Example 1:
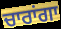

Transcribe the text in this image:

ਚਾਰਾਂਗਾ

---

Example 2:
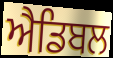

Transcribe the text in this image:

ਐਡਿਬਲ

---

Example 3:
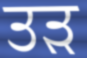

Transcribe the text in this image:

ਤੜ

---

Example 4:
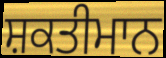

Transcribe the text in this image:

ਸ਼ਕਤੀਮਾਨ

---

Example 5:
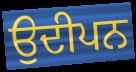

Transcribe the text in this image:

ਉਦੀਪਨ